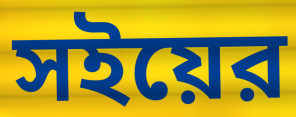
সইয়ের